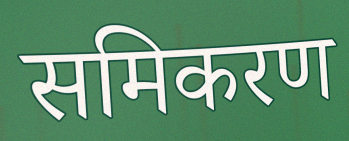
समिकरण